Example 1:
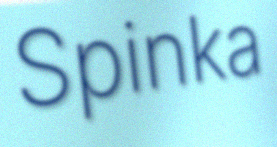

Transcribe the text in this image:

Spinka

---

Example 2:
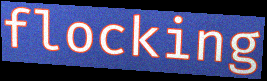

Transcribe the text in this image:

flocking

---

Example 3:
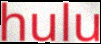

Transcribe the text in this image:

hulu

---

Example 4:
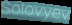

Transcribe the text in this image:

Solovyev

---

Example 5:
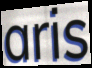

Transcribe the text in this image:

aris